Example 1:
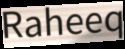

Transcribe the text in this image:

Raheeq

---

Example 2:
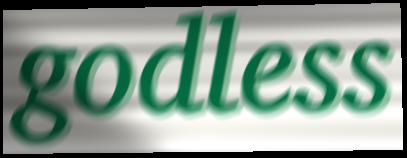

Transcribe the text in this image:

godless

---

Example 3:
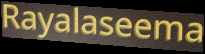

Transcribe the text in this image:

Rayalaseema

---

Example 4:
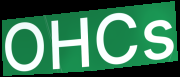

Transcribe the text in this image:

OHCs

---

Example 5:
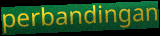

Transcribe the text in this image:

perbandingan